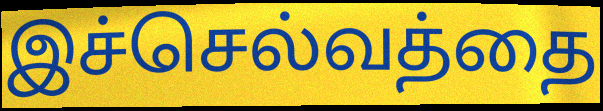
இச்செல்வத்தை